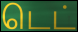
டெட்